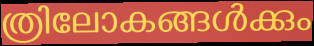
ത്രിലോകങ്ങൾക്കും